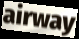
airway